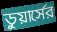
ডুয়ার্সের